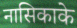
नासिकाके